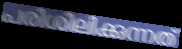
പരിശീലിക്കുന്നത്